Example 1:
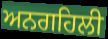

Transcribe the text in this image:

ਅਨਗਹਿਲੀ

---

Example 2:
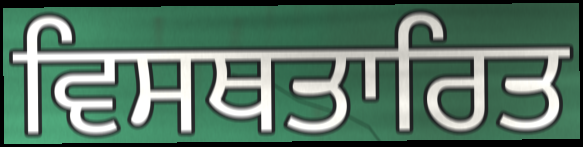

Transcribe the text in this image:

ਵਿਸਥਤਾਰਿਤ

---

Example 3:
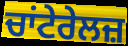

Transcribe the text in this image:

ਚਾਂਟੇਰੇਲਜ਼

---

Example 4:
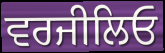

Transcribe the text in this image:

ਵਰਜੀਲਿਓ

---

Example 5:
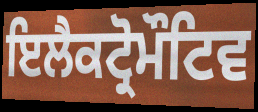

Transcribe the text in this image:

ਇਲੈਕਟ੍ਰੋਮੌਟਿਵ